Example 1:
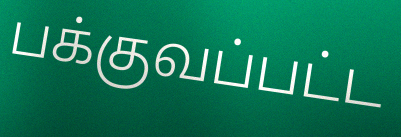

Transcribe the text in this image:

பக்குவப்பட்ட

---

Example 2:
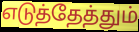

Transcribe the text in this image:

எடுத்தேத்தும்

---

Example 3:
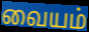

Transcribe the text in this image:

வையம்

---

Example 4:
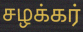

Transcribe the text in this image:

சழக்கர்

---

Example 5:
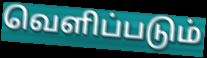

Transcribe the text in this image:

வெளிப்படும்